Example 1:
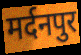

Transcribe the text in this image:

मर्दनपुर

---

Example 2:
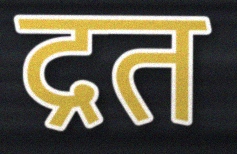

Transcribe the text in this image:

द्रत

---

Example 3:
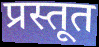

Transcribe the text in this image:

प्रस्तूत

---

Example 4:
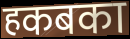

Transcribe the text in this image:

हकबका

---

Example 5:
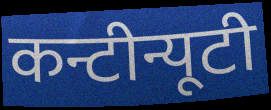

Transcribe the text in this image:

कन्टीन्यूटी